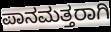
ಪಾನಮತ್ತರಾಗಿ